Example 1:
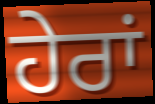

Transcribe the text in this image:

ਹੇਰਾਂ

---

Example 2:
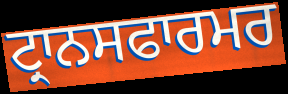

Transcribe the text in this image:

ਟ੍ਰਾਨਸਫਾਰਮਰ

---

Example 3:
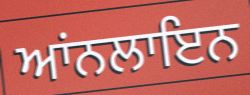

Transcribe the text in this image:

ਆਂਨਲਾਇਨ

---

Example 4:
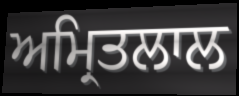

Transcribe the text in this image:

ਅਮ੍ਰਿਤਲਾਲ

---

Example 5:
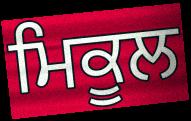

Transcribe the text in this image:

ਮਿਕੂਲ